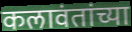
कलावंतांच्या